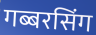
गब्बरसिंग